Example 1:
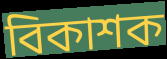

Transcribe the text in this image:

বিকাশক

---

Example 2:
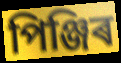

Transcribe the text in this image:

পিঞ্জিৰ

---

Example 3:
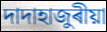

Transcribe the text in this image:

দাদাহাজুৰীয়া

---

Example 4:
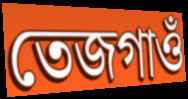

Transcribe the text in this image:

তেজগাওঁ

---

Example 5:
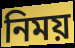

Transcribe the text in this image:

নিময়